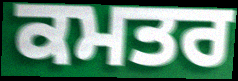
ਕਮਤਰ